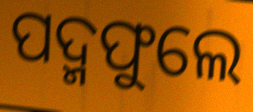
ପଦ୍ମଫୁଲେ